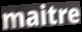
maitre